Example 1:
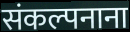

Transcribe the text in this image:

संकल्पनाना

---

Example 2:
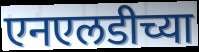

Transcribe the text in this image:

एनएलडीच्या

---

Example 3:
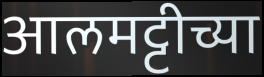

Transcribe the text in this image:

आलमट्टीच्या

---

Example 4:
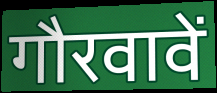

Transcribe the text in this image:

गौरवावें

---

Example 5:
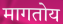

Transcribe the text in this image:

मागतोय